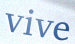
vive